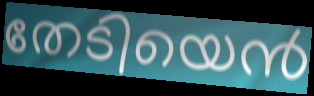
തേടിയെൻ